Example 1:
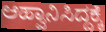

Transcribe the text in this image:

ಆಹ್ವಾನಿಸಿದ್ದಕ್ಕೆ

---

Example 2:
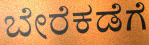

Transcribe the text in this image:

ಬೇರೆಕಡೆಗೆ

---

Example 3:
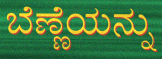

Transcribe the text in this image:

ಬೆಣ್ಣೆಯನ್ನು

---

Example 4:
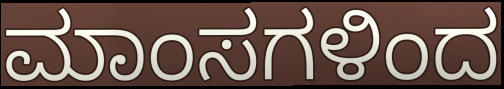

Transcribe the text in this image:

ಮಾಂಸಗಳಿಂದ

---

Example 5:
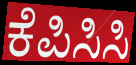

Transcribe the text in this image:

ಕೆಪಿಸಿಸಿ